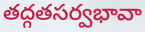
తద్గతసర్వభావా